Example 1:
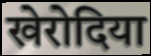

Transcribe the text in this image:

खेरोदिया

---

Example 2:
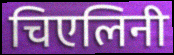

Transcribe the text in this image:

चिएलिनी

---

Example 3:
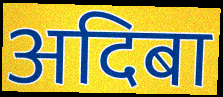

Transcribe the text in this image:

अदिबा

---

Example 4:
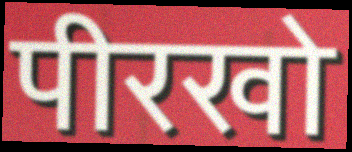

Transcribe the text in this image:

पीरखो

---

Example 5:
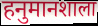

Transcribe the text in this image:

हनुमानशाला